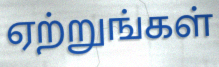
ஏற்றுங்கள்